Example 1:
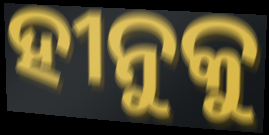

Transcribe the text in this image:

ହୀନୁକୁ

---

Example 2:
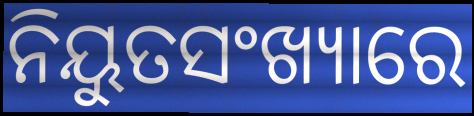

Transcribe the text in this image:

ନିୟୁତସଂଖ୍ୟାରେ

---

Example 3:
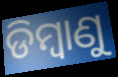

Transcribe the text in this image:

ଡିମ୍ୱାଣୁ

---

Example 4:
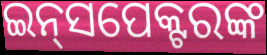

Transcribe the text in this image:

ଇନ୍‍ସପେକ୍ଟରଙ୍କ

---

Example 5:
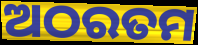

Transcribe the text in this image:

ଅଠରତମ